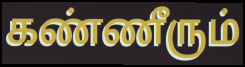
கண்ணீரும்